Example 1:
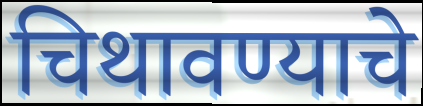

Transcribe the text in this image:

चिथावण्याचे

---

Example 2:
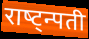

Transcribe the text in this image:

राष्ट्न्पती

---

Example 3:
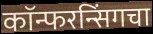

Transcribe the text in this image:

कॉन्फरन्सिंगचा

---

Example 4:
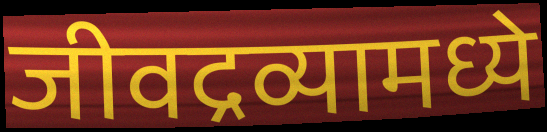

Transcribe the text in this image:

जीवद्रव्यामध्ये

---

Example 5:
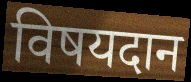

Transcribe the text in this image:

विषयदान